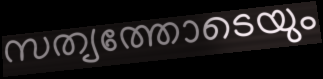
സത്യത്തോടെയും